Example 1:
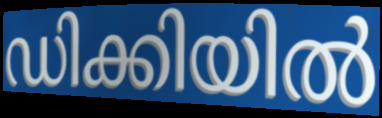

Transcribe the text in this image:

ഡിക്കിയിൽ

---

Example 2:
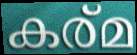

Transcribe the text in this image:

കര്മ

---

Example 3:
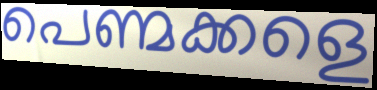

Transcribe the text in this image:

പെണ്മക്കളെ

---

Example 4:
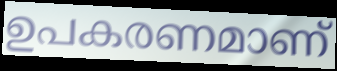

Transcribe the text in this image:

ഉപകരണമാണ്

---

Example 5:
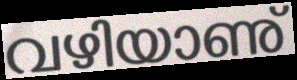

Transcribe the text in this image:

വഴിയാണു്